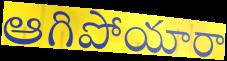
ఆగిపోయారా